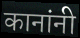
कानांनी